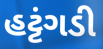
હટ્ટંગડી